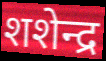
शशेन्द्र